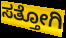
ಸತ್ತೋಗಿ